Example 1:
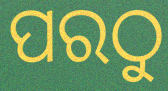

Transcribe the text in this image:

ପରଠୁ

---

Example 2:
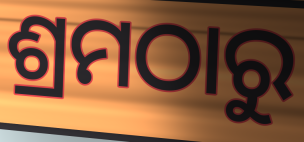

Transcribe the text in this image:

ଶ୍ରମଠାରୁ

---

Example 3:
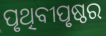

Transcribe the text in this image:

ପୃଥିବୀପୃଷ୍ଠର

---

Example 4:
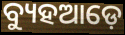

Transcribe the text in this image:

ବ୍ୟୁହଆଡ଼େ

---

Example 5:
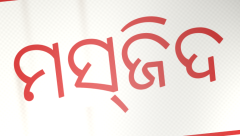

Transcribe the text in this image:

ମସ୍‌ଜିଦ